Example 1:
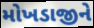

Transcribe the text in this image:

મોખડાજીને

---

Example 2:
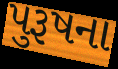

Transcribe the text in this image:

પુરૂષના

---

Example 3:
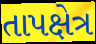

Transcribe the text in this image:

તાપક્ષેત્ર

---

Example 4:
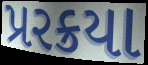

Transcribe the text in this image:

પ્રરક્રયા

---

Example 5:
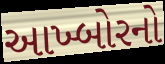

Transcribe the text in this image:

આખ્બોરનો